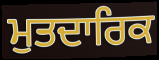
ਮੁਤਦਾਰਿਕ